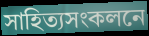
সাহিত্যসংকলনে